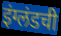
इंग्लंडची